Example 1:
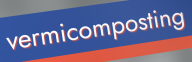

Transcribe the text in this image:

vermicomposting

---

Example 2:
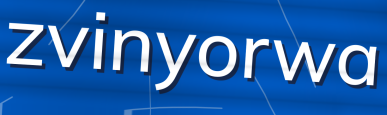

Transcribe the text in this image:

zvinyorwa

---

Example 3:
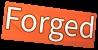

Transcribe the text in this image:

Forged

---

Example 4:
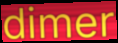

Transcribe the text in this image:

dimer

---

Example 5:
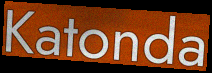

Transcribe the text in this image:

Katonda